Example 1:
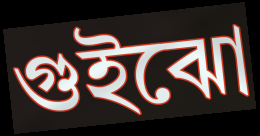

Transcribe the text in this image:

গুইঝো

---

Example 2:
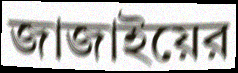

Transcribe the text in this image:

জাজাইয়ের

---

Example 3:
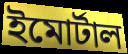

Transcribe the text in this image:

ইমোর্টাল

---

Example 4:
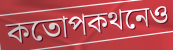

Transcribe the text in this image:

কতোপকথনেও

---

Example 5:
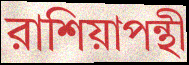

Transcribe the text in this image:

রাশিয়াপন্থী